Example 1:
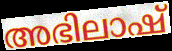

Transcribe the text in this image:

അഭിലാഷ്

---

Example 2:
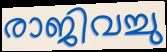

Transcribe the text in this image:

രാജിവച്ചു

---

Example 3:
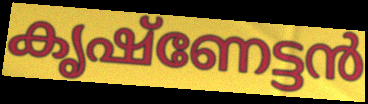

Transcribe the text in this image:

കൃഷ്ണേട്ടൻ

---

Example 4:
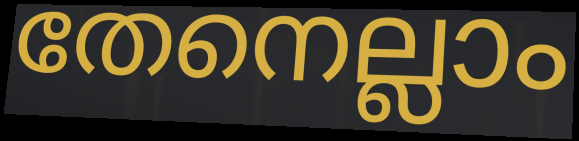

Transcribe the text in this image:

തേനെല്ലാം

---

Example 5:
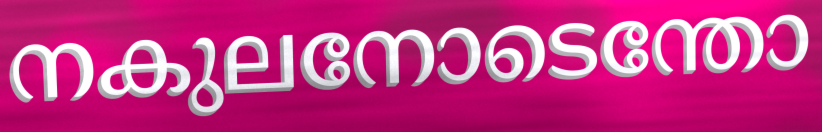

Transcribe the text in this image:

നകുലനോടെന്തോ